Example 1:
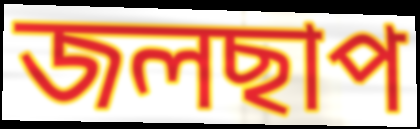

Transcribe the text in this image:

জলছাপ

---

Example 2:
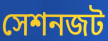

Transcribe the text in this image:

সেশনজট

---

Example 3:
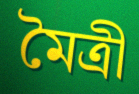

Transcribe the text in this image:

মৈত্রী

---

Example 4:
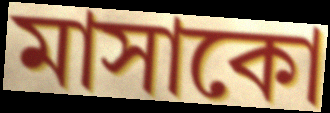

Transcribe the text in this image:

মাসাকো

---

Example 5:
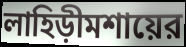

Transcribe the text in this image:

লাহিড়ীমশায়ের